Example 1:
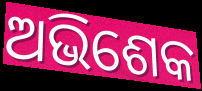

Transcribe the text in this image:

ଅଭିଶେକ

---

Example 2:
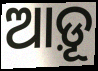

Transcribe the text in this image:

ଆଡ଼ୂ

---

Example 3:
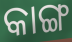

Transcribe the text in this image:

କାଙ୍ଗ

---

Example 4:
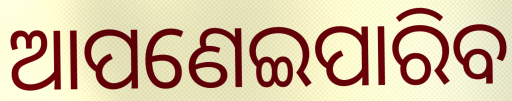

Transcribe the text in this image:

ଆପଣେଇପାରିବ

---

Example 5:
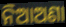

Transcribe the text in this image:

ନିଆଅଣା